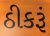
ઠીકરૂં